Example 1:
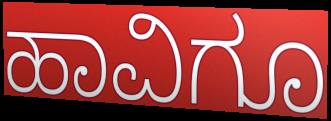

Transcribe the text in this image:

ಹಾವಿಗೂ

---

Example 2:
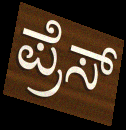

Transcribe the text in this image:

ಪ್ರೆಸ್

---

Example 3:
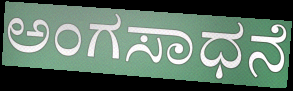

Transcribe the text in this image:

ಅಂಗಸಾಧನೆ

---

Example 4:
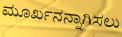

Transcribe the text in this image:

ಮೂರ್ಖನನ್ನಾಗಿಸಲು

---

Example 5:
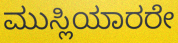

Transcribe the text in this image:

ಮುಸ್ಲಿಯಾರರೇ